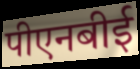
पीएनबीई